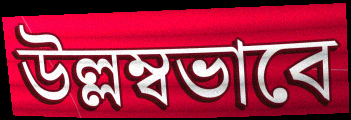
উল্লম্বভাবে